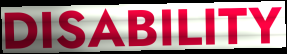
DISABILITY